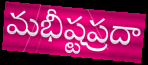
మభీష్టప్రదా